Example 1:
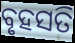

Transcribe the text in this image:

ବୃହସତି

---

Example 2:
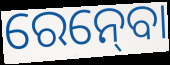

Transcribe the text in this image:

ରେନ୍‍ବୋ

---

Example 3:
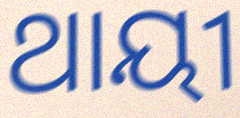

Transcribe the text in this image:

ଥାୟୀ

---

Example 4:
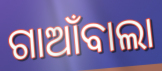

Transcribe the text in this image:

ଗାଆଁବାଲା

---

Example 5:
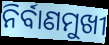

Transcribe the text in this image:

ନିର୍ବାଣମୁଖୀ